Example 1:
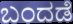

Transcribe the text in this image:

ಬಂದಡೆ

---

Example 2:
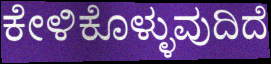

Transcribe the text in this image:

ಕೇಳಿಕೊಳ್ಳುವುದಿದೆ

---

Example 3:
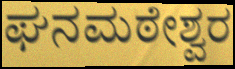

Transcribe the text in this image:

ಘನಮಠೇಶ್ವರ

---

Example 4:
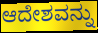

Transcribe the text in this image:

ಆದೇಶವನ್ನು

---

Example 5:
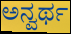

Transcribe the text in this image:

ಅನ್ವರ್ಥ